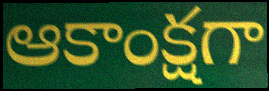
ఆకాంక్షగా